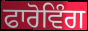
ਫਾਰੋਵਿੰਗ